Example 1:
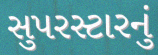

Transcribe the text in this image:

સુપરસ્ટારનું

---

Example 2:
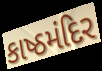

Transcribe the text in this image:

કાષ્ઠમંદિર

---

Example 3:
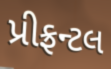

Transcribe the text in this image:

પ્રીફ્રન્ટલ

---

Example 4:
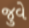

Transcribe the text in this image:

જુવે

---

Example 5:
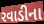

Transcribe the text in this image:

રવાડીના